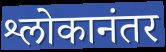
श्लोकानंतर